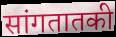
सांगतातकी